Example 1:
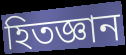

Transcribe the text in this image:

হিতজ্ঞান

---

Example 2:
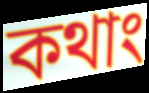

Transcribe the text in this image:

কথাং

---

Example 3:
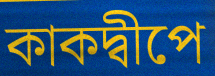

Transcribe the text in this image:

কাকদ্বীপে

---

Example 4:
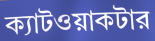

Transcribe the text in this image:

ক্যাটওয়াকটার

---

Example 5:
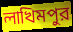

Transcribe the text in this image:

লাখিমপুর